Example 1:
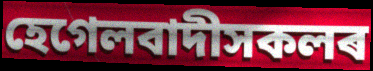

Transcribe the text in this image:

হেগেলবাদীসকলৰ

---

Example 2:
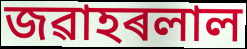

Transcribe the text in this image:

জৱাহৰলাল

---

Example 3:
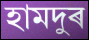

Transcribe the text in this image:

হামদুৰ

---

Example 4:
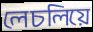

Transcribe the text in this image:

লেচলিয়ে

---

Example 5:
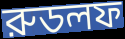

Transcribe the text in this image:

ৰুডলফ